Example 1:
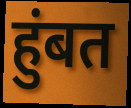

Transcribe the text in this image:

हुंबत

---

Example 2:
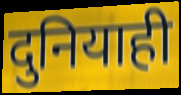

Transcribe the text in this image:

दुनियाही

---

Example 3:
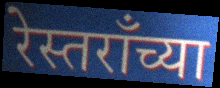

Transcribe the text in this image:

रेस्तराँच्या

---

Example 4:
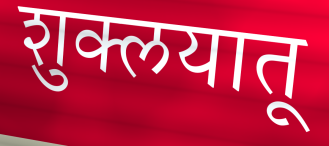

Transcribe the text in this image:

शुक्लयातू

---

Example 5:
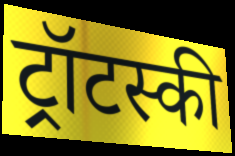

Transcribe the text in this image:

ट्रॉटस्की